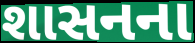
શાસનના